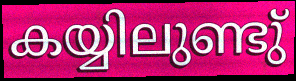
കയ്യിലുണ്ടു്